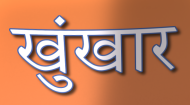
खुंखार